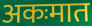
अकःमात